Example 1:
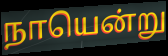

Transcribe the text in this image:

நாயென்று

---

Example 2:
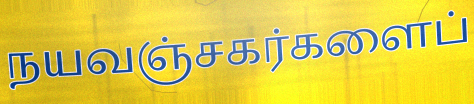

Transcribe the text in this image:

நயவஞ்சகர்களைப்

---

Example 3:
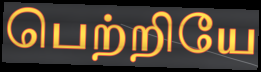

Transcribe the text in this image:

பெற்றியே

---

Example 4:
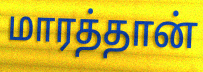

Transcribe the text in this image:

மாரத்தான்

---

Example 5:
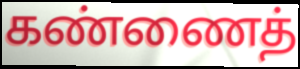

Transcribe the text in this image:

கண்ணைத்